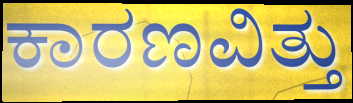
ಕಾರಣವಿತ್ತು